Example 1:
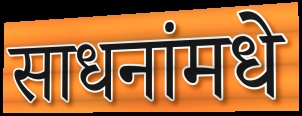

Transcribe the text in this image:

साधनांमधे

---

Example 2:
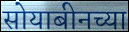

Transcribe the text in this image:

सोयाबीनच्या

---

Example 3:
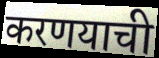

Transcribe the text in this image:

करणयाची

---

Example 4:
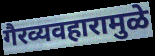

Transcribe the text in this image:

गैरव्यवहारामुळे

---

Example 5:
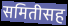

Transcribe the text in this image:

समितीसह